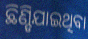
ଛିଣ୍ଡିଯାଇଥିବା